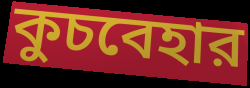
কুচবেহার